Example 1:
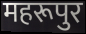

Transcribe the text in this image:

महरूपुर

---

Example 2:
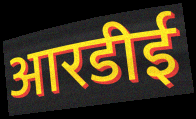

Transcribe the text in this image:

आरडीई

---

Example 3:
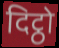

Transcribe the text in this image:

दिट्ठो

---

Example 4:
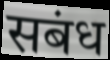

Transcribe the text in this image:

सबंध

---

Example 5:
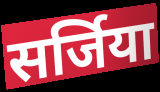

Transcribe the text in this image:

सर्जिया